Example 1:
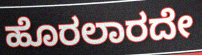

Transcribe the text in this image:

ಹೊರಲಾರದೇ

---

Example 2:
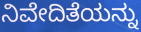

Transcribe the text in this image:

ನಿವೇದಿತೆಯನ್ನು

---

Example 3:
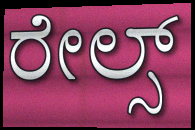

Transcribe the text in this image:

ರೇಲ್ಸ್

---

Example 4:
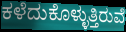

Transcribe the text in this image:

ಕಳೆದುಕೊಳ್ಳುತ್ತಿರುವೆ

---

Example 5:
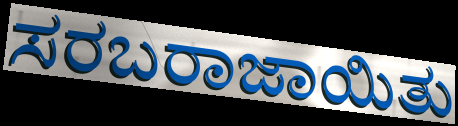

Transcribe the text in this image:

ಸರಬರಾಜಾಯಿತು